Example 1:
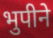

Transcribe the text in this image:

भुपीने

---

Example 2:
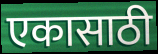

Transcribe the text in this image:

एकासाठी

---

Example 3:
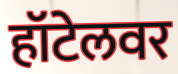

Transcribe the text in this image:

हॉटेलवर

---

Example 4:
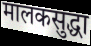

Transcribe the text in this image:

मालकसुद्धा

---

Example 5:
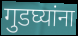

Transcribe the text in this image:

गुडघ्यांना